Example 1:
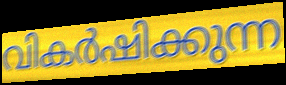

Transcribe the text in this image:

വികർഷിക്കുന്ന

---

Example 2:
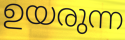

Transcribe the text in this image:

ഉയരുന്ന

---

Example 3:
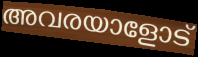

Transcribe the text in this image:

അവരയാളോട്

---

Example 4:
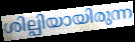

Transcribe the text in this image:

ശില്പിയായിരുന്ന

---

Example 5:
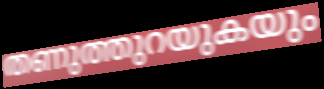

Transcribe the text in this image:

തണുത്തുറയുകയും